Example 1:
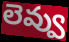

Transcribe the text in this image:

లెవ్వు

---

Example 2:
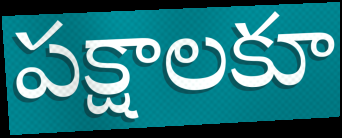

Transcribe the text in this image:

పక్షాలకూ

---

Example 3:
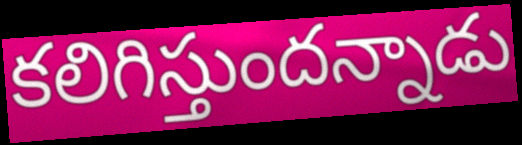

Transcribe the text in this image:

కలిగిస్తుందన్నాడు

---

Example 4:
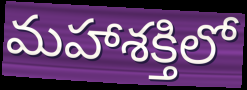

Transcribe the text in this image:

మహాశక్తిలో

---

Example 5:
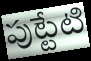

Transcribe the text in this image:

పుట్టేటి